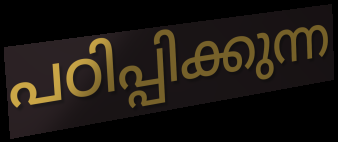
പഠിപ്പിക്കുന്ന